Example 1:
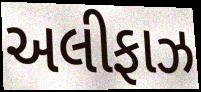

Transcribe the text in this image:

અલીફાઝ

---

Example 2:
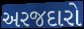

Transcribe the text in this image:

અરજદારો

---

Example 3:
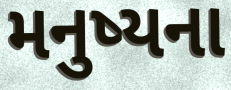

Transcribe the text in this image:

મનુષ્યના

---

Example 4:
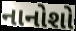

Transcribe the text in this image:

નાનોશો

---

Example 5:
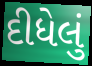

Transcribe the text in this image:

દીધેલું